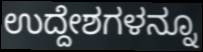
ಉದ್ದೇಶಗಳನ್ನೂ